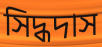
সিদ্ধদাস